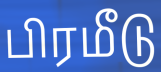
பிரமீடு